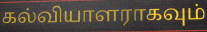
கல்வியாளராகவும்